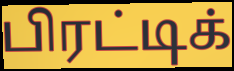
பிரட்டிக்